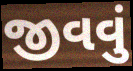
જીવવું